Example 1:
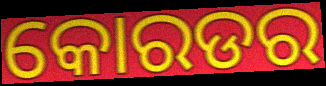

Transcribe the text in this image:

କୋରଡର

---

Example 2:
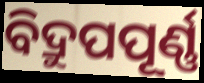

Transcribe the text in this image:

ବିଦ୍ରୁପପୂର୍ଣ୍ଣ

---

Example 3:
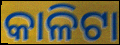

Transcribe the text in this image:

କାଳିଟା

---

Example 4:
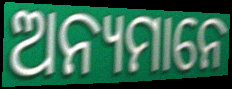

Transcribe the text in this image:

ଅନ୍ଯମାନେ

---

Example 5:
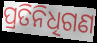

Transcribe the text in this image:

ପ୍ରତିନିଧିଗଣ